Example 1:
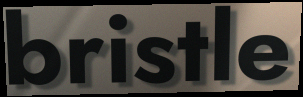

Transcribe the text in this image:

bristle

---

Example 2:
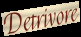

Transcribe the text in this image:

Detrivore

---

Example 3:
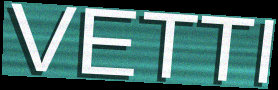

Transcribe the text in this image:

VETTI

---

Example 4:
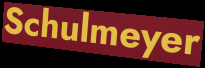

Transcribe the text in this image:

Schulmeyer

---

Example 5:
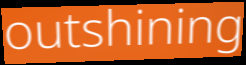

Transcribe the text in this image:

outshining